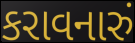
કરાવનારું